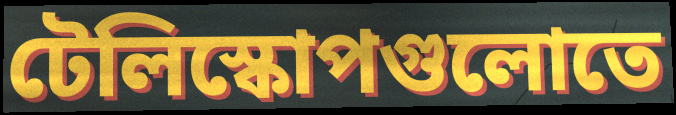
টেলিস্কোপগুলোতে